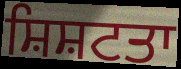
ਸ਼ਿਸ਼ਟਤਾ